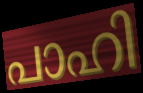
പാഹി